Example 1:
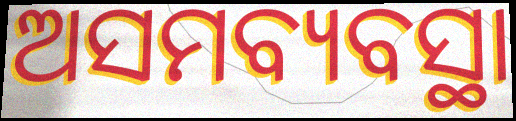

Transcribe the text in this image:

ଅସମବ୍ୟବସ୍ଥା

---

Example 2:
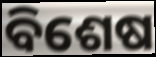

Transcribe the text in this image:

ବିଶେଷ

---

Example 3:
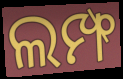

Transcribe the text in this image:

ଲମ୍ଫ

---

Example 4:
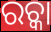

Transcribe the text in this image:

ରଚ୍କା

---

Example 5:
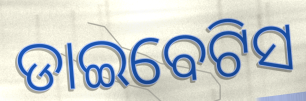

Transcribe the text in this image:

ଡାଇବେଟିସ